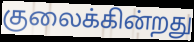
குலைக்கின்றது